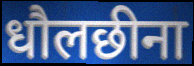
धौलछीना